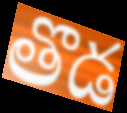
తొడ